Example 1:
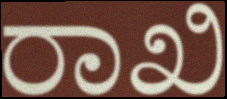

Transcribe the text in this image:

ರಾಖಿ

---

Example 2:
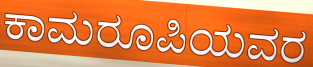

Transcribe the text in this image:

ಕಾಮರೂಪಿಯವರ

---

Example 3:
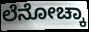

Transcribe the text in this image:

ಲೆನೋಚ್ಕಾ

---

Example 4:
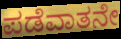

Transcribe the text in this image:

ಪಡೆವಾತನೇ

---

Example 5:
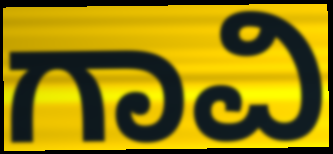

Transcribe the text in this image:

ಗಾವಿ